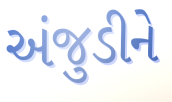
અંજુડીને